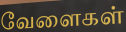
வேளைகள்